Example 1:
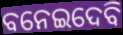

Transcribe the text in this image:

ବନେଇଦେବି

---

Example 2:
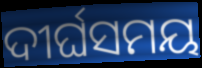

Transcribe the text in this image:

ଦୀର୍ଘସମୟ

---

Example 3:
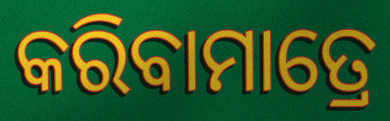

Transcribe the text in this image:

କରିବାମାତ୍ରେ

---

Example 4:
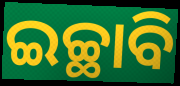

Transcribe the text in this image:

ଇଚ୍ଛାବି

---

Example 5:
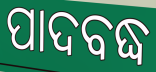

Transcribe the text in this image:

ପାଦବଦ୍ଧ